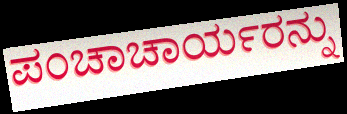
ಪಂಚಾಚಾರ್ಯರನ್ನು